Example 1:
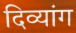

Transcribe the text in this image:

दिव्यांग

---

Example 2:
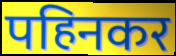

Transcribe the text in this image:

पहिनकर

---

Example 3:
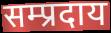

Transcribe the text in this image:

सम्प्रदाय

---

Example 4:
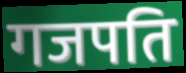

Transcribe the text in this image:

गजपति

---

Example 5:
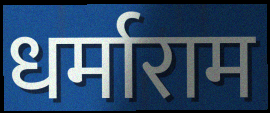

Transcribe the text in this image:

धर्माराम